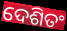
ଦେଶିତଂ